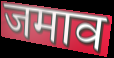
जमाव